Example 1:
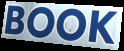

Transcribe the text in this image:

BOOK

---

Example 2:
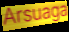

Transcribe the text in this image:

Arsuaga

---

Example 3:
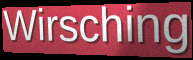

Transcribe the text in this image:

Wirsching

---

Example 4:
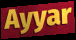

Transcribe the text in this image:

Ayyar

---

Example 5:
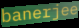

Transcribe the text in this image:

banerjee